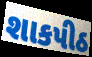
શાકપીઠ